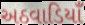
અઠવાડિયાઁ